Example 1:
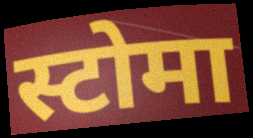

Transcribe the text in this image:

स्टोमा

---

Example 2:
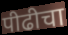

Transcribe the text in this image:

पीढीचा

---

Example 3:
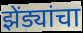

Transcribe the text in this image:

झेंड्यांचा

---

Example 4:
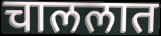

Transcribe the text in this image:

चाललात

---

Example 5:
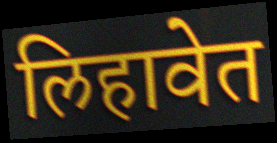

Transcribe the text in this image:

लिहावेत